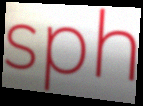
sph